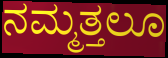
ನಮ್ಮತ್ತಲೂ